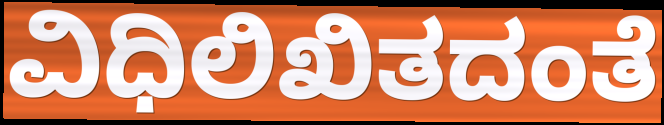
ವಿಧಿಲಿಖಿತದಂತೆ